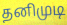
தனிமுடி